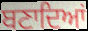
ਬਣਾਦਿਆਂ